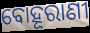
ବୋହୂରାଣୀ